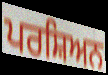
ਪਰਸ਼ਿਅਨ